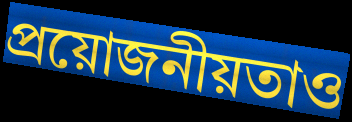
প্রয়োজনীয়তাও